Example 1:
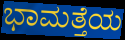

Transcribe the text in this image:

ಭಾಮತ್ತೆಯ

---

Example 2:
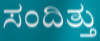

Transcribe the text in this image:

ಸಂದಿತ್ತು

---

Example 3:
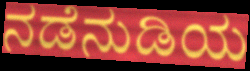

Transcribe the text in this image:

ನಡೆನುಡಿಯ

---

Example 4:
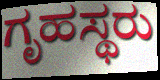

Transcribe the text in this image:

ಗೃಹಸ್ಥರು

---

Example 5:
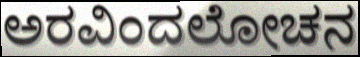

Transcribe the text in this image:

ಅರವಿಂದಲೋಚನ